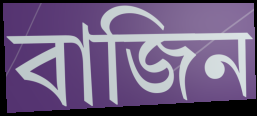
বাজিন